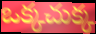
ఒక్కచుక్క